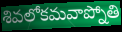
శివలోకమవాప్నోతి